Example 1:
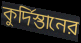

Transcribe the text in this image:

কুর্দিস্তানের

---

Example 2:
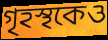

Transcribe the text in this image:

গৃহস্থকেও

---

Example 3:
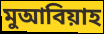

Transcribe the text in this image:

মুআবিয়াহ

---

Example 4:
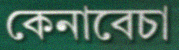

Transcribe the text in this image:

কেনাবেচা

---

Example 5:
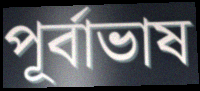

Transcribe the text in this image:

পূর্বাভাষ